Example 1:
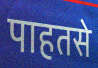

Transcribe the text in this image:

पाहतसे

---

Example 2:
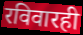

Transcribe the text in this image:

रविवारही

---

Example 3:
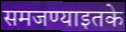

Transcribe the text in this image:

समजण्याइतके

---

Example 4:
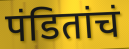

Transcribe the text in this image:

पंडितांचं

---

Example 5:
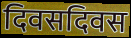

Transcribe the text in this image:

दिवसदिवस